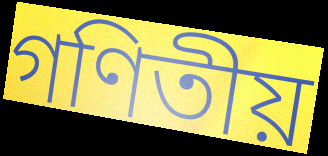
গণিতীয়